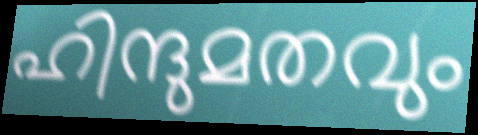
ഹിന്ദുമതവും